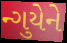
ન્ગુયેને